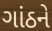
ગાંઠને